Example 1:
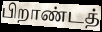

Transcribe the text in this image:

பிறாண்டத்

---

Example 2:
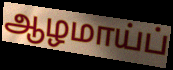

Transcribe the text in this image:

ஆழமாய்ப்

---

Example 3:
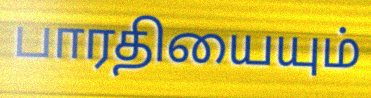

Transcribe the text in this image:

பாரதியையும்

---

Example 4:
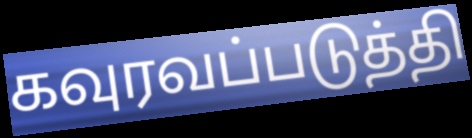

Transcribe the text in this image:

கவுரவப்படுத்தி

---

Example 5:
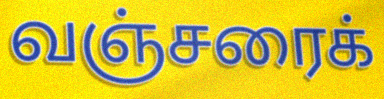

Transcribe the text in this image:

வஞ்சரைக்